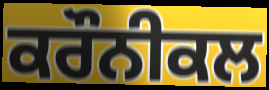
ਕਰੌਨੀਕਲ